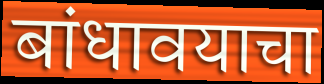
बांधावयाचा